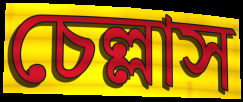
চেল্লাস